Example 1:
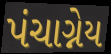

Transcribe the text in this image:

પંચાગ્નેય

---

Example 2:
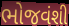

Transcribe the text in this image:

ભોજવંશી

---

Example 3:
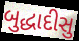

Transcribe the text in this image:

બુદ્ધાદીસુ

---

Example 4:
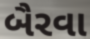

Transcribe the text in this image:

બૈરવા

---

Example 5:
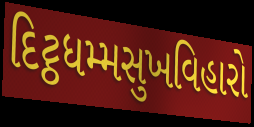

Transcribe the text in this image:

દિટ્ઠધમ્મસુખવિહારો